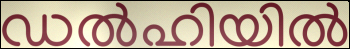
ഡൽഹിയിൽ